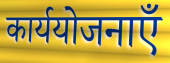
कार्ययोजनाएँ